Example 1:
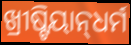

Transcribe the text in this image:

ଖ୍ରୀଷ୍ଟିୟାନ୍‌ଧର୍ମ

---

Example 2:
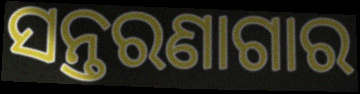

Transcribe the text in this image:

ସନ୍ତରଣାଗାର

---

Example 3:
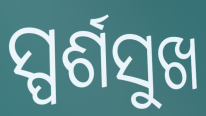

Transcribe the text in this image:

ସ୍ପର୍ଶସୁଖ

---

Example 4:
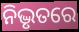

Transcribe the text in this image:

ନିଦ୍ଭୃତରେ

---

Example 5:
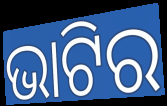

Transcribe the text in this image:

ଭାଟିର